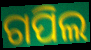
ଗପିଲ